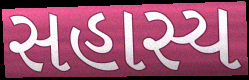
સહાસ્ય